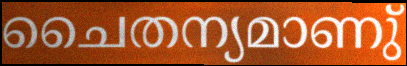
ചൈതന്യമാണു്